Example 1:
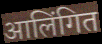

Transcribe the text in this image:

आलिंगित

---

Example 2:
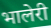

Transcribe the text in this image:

भालेरी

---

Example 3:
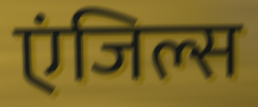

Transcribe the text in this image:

एंजिल्‍स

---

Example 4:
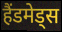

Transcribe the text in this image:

हैंडमेड्स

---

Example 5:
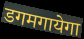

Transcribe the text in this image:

डगमगायेगा